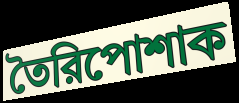
তৈরিপোশাক